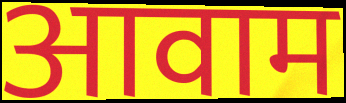
आवाम